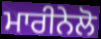
ਮਾਰੀਨੇਲੋ